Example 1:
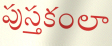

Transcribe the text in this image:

పుస్తకంలా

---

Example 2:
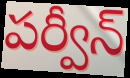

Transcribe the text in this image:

పర్వీన్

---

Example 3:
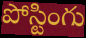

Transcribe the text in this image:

పోస్టింగు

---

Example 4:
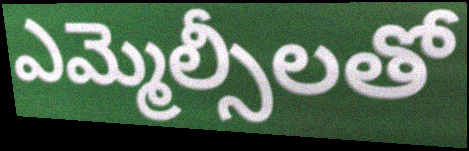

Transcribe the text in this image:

ఎమ్మెల్సీలతో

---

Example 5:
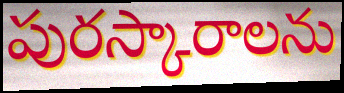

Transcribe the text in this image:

పురస్కారాలను